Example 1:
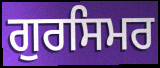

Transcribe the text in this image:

ਗੁਰਸਿਮਰ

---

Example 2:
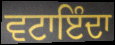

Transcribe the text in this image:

ਵਟਾਇੰਦਾ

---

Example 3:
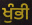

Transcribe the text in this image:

ਖੁੰਭੀ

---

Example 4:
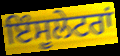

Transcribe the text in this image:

ਇੰਸੂਲੇਟਰਾਂ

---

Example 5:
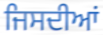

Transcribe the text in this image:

ਜਿਸਦੀਆਂ